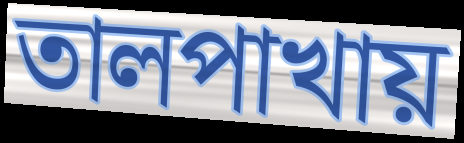
তালপাখায়